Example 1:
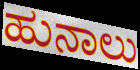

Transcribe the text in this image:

ಹುನಾಲು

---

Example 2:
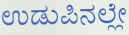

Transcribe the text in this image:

ಉಡುಪಿನಲ್ಲೇ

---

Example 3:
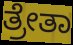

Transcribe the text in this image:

ತ್ರೇತಾ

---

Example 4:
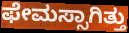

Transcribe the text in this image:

ಫೇಮಸ್ಸಾಗಿತ್ತು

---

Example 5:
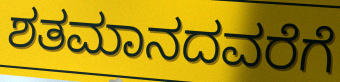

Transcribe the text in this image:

ಶತಮಾನದವರೆಗೆ